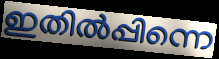
ഇതിൽപ്പിന്നെ